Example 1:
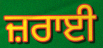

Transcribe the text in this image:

ਜ਼ਰਾਈ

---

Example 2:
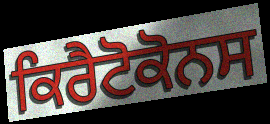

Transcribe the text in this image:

ਕਿਰੈਟੋਕੋਨਸ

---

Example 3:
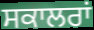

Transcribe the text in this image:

ਸਕਾਲਰਾਂ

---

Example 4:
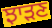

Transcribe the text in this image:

ਝਾੜਣ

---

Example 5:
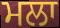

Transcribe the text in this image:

ਮਲਾ